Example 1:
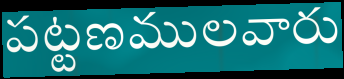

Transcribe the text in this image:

పట్టణములవారు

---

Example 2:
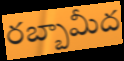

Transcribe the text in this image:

రబ్బామీద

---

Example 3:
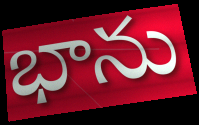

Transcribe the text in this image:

భాను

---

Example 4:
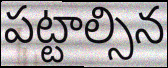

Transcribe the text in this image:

పట్టాల్సిన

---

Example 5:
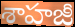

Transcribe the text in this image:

శాహజీ